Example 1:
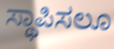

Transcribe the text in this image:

ಸ್ಥಾಪಿಸಲೂ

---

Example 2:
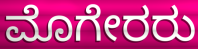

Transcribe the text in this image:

ಮೊಗೇರರು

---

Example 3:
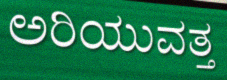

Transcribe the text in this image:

ಅರಿಯುವತ್ತ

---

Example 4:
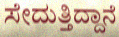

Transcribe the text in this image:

ಸೇದುತ್ತಿದ್ದಾನೆ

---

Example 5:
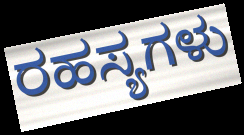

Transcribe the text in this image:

ರಹಸ್ಯಗಳು